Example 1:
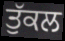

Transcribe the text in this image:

ਤੁੱਕਲ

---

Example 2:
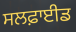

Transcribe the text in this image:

ਸਲਫ਼ਾਈਡ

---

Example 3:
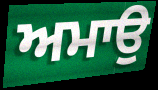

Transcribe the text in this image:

ਅਮਾਉ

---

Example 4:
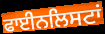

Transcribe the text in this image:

ਫਾਈਨਲਿਸਟਾਂ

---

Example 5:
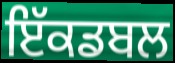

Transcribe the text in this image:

ਇੱਕਡਬਲ